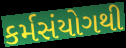
કર્મસંયોગથી